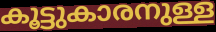
കൂട്ടുകാരനുള്ള